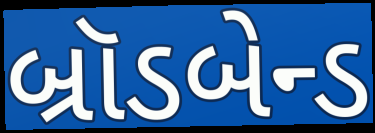
બ્રૉડબેન્ડ